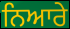
ਨਿਆਰੇ